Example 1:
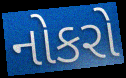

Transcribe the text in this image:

નોકરો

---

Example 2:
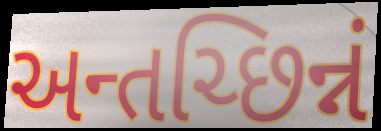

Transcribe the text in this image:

અન્તચ્છિન્નં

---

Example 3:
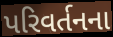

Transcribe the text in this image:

પરિવર્તનના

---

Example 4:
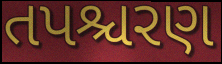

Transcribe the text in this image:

તપશ્ચરણ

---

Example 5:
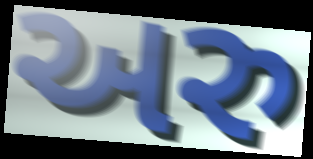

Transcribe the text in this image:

અરુ